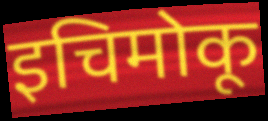
इचिमोकू